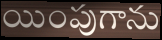
యింపుగాను